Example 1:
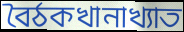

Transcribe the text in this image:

বৈঠকখানাখ্যাত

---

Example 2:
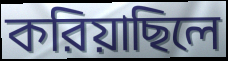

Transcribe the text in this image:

করিয়াছিলে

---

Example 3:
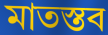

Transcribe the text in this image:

মাতস্তব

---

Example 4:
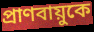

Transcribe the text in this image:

প্রাণবায়ুকে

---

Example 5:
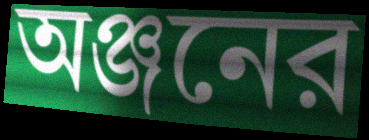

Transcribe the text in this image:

অঞ্জনের